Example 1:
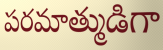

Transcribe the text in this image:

పరమాత్ముడిగా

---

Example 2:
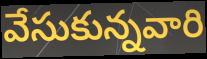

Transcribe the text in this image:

వేసుకున్నవారి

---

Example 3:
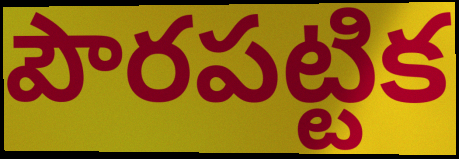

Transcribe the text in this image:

పౌరపట్టిక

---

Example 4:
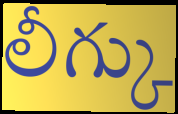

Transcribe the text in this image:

లీగ్కు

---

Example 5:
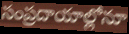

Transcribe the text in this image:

సంప్రదాయాల్లోనూ